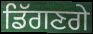
ਡਿੱਗਣਗੇ